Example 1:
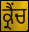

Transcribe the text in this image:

ਕ੍ਰੈਂਚ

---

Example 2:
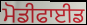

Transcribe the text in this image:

ਮੋਡੀਫਾਈਡ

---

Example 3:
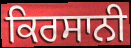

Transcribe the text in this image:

ਕਿਰਸਾਨੀ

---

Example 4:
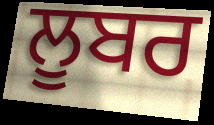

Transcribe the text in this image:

ਲੂਬਰ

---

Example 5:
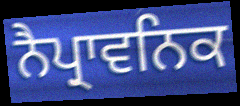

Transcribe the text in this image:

ਨੈਪ੍ਰਾਵਨਿਕ